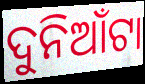
ଦୁନିଆଁଟା